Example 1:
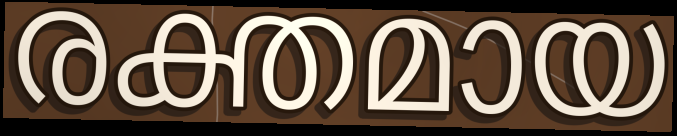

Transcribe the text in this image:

രക്തമായ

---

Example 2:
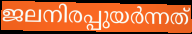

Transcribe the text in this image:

ജലനിരപ്പുയർന്നത്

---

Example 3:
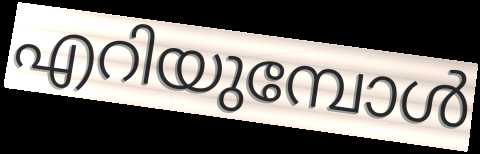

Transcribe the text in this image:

എറിയുമ്പോൾ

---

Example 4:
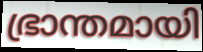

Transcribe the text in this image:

ഭ്രാന്തമായി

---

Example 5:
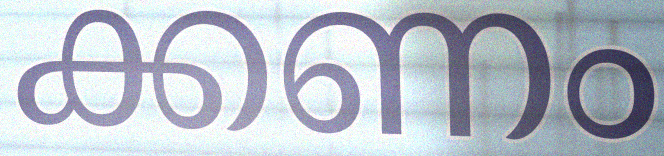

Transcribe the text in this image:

ക്കണം